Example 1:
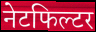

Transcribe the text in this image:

नेटफिल्टर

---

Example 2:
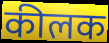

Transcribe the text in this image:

कीलक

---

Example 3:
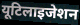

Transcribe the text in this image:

यूटिलाइजेशन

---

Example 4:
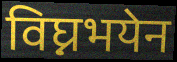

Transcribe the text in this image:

विघ्नभयेन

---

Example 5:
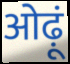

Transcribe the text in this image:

ओढ़ूं